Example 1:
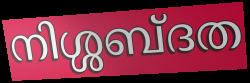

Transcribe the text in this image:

നിശ്ശബ്ദത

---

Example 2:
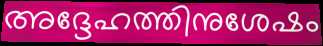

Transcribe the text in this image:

അദ്ദേഹത്തിനുശേഷം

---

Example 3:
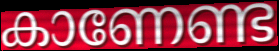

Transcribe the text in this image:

കാണേണ്ട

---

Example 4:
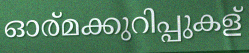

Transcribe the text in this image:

ഓര്മക്കുറിപ്പുകള്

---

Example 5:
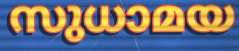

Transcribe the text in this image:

സുധാമയ